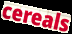
cereals